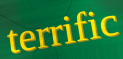
terrific